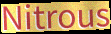
Nitrous